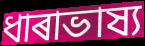
ধাৰাভাষ্য